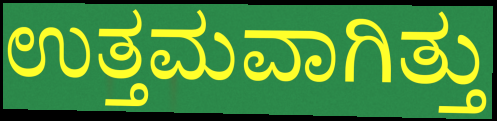
ಉತ್ತಮವಾಗಿತ್ತು